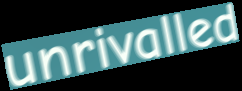
unrivalled